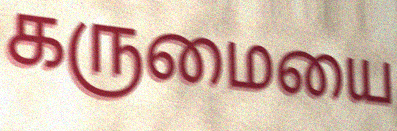
கருமையை